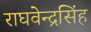
राघवेन्द्रसिंह